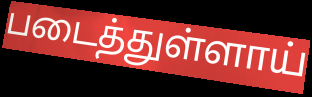
படைத்துள்ளாய்